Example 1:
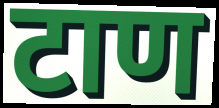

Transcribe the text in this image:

टाण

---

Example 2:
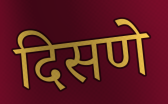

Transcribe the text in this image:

दिसणे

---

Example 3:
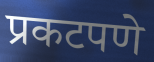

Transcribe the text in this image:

प्रकटपणे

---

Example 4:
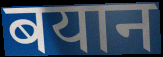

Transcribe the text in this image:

बयान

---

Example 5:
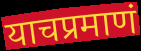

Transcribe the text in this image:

याचप्रमाणं